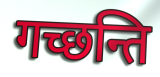
गच्छन्ति